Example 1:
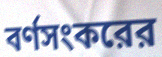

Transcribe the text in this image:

বর্ণসংকরের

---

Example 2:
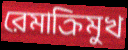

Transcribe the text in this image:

রেমাক্রিমুখ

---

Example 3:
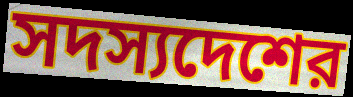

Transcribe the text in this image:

সদস্যদেশের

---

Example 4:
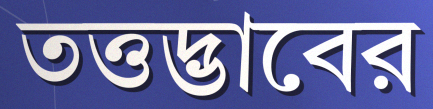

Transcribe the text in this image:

তত্তদ্ভাবের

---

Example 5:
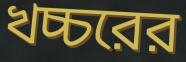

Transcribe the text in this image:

খচ্চরের